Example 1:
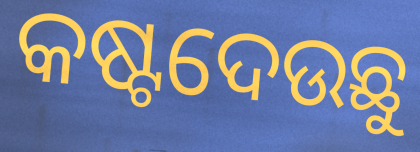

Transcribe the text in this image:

କଷ୍ଟଦେଉଛୁ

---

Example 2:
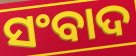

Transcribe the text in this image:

ସଂବାଦ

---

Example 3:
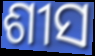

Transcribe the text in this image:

ଶୀସ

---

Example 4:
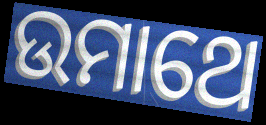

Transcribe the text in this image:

ଉମାଥେ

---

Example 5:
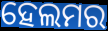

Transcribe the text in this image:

ହେଲମର